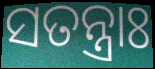
ସତନ୍ତ୍ରାଃ